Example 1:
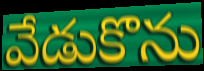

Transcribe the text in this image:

వేడుకొను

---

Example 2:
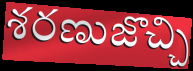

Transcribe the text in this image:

శరణుజొచ్చి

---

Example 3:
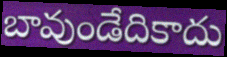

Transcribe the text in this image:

బావుండేదికాదు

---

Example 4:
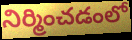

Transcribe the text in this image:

నిర్మించడంలో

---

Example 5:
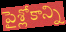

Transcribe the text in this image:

పైశ్లోకాన్ని